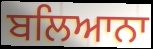
ਬਲਿਆਨਾ